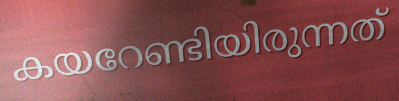
കയറേണ്ടിയിരുന്നത്